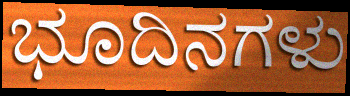
ಭೂದಿನಗಳು